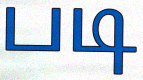
படி